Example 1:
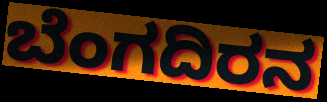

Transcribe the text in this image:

ಬೆಂಗದಿರನ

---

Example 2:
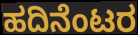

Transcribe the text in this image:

ಹದಿನೆಂಟರ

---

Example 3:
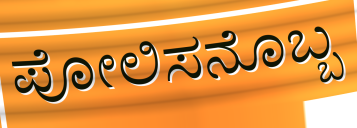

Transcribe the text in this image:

ಪೋಲಿಸನೊಬ್ಬ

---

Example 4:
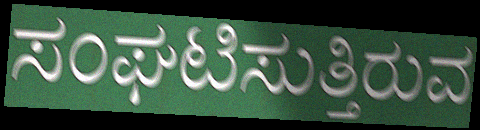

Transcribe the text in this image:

ಸಂಘಟಿಸುತ್ತಿರುವ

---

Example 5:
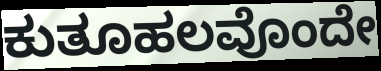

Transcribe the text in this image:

ಕುತೂಹಲವೊಂದೇ